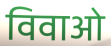
विवाओ